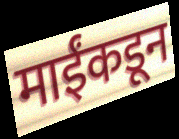
माईंकडून